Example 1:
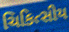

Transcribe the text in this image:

ચિકિત્સીય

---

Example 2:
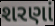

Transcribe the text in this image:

શરણાં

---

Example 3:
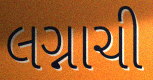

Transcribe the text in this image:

લગ્નાચી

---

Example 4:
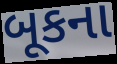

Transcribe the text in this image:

બૂકના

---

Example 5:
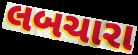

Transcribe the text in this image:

લબચારા